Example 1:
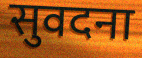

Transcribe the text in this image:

सुवदना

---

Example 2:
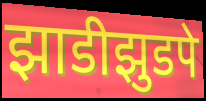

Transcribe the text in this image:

झाडीझुडपे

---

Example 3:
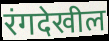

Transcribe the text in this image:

रंगदेखील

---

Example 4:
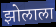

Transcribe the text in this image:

झोलाला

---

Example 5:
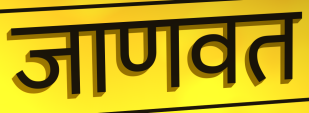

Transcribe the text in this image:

जाणवत